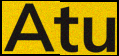
Atu